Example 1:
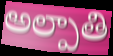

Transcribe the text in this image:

అల్పాతి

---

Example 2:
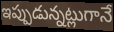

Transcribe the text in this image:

ఇప్పుడున్నట్లుగానే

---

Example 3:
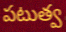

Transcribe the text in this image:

పటుత్వ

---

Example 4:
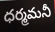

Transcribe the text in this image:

ధర్మమనీ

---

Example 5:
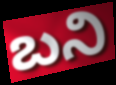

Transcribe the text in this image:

బని